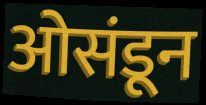
ओसंडून